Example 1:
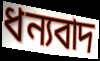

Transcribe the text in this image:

ধন্যবাদ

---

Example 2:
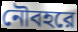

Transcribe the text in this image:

নৌবহরে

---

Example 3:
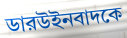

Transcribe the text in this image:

ডারউইনবাদকে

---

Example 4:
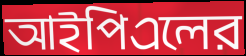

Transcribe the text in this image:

আইপিএলের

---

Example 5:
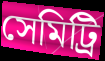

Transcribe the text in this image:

সেমিট্রি